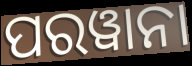
ପରୱାନା